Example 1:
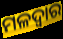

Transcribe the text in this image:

ମଳଦ୍ୱାର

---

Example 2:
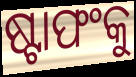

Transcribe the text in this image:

ଷ୍ଟାଫଂକୁ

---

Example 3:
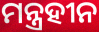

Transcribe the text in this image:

ମନ୍ତ୍ରହୀନ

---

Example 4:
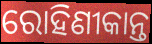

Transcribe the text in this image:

ରୋହିଣୀକାନ୍ତ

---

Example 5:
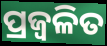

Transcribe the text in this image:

ପ୍ରଜ୍ୱଳିତ